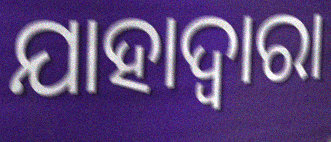
ଯାହାଦ୍ୱାରା